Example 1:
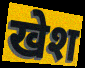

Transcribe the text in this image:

खेश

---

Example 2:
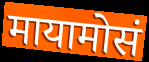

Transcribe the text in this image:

मायामोसं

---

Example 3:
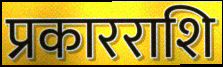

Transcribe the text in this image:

प्रकारराशि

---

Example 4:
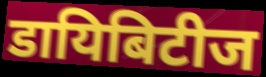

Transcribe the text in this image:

डायिबिटीज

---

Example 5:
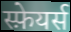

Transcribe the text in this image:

स्फ़ेयर्स